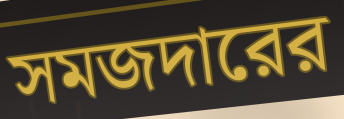
সমজদারের